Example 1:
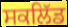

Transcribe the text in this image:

ਸਕਲਿੱਡ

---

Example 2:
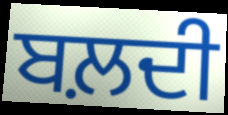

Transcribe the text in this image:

ਬਲ਼ਦੀ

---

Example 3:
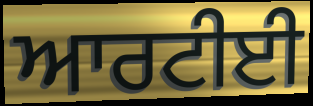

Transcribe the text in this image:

ਆਰਟੀਈ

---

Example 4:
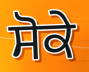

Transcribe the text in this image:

ਸੋਕੇ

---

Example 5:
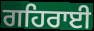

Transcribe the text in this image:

ਗਹਿਰਾਈ